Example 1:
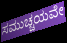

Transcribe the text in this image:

ಸಮುಚ್ಚಯವೇ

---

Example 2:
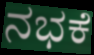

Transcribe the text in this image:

ನಭಕೆ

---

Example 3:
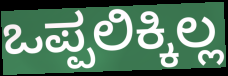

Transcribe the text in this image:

ಒಪ್ಪಲಿಕ್ಕಿಲ್ಲ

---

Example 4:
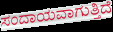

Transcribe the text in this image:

ಸಂದಾಯವಾಗುತ್ತಿದೆ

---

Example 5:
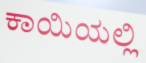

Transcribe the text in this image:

ಕಾಯಿಯಲ್ಲಿ